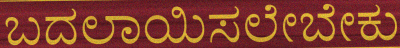
ಬದಲಾಯಿಸಲೇಬೇಕು